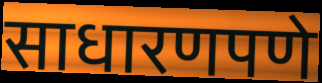
साधारणपणे